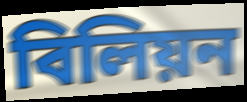
বিলিয়ন